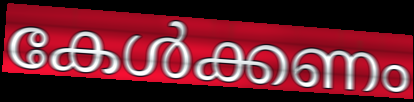
കേൾക്കണം